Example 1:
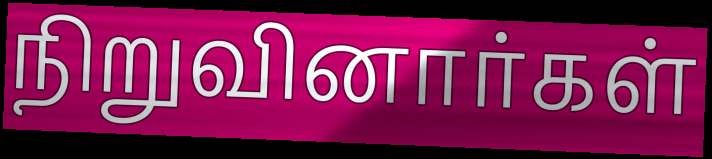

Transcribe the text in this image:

நிறுவினார்கள்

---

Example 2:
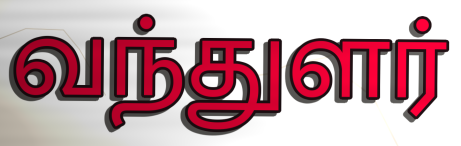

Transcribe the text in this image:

வந்துளர்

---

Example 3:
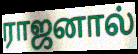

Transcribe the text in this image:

ராஜனால்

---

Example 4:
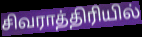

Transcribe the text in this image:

சிவராத்திரியில்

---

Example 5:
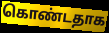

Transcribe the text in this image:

கொண்டதாக